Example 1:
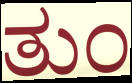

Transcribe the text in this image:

ತುಂ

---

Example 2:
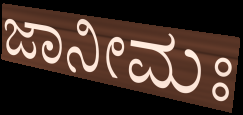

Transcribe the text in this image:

ಜಾನೀಮಃ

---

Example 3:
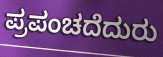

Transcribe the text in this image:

ಪ್ರಪಂಚದೆದುರು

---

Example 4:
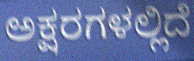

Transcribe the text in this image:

ಅಕ್ಷರಗಳಲ್ಲಿದೆ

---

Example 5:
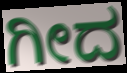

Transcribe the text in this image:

ಗೀದ